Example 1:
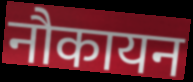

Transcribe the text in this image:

नौकायन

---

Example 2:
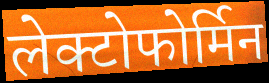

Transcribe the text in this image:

लेक्टोफोर्मिन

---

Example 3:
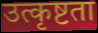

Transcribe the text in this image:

उत्कृष्टता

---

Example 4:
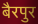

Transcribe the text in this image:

बैरपुर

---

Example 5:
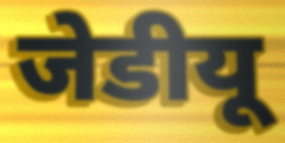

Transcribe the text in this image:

जेडीयू